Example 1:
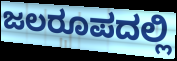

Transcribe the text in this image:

ಜಲರೂಪದಲ್ಲಿ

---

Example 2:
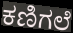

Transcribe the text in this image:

ಕಣಿಗಲೆ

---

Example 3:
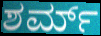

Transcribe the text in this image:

ಶರ್ಮ್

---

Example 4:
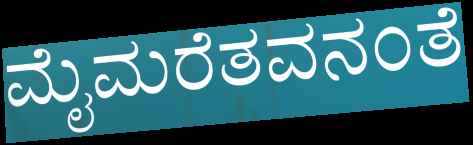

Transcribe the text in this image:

ಮೈಮರೆತವನಂತೆ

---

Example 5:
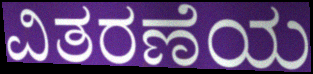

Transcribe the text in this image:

ವಿತರಣೆಯ